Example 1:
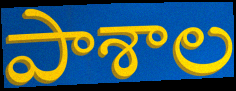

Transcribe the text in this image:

పాశాల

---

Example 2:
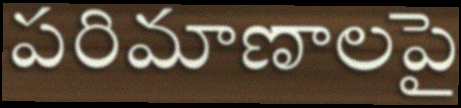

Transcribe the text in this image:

పరిమాణాలపై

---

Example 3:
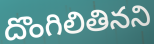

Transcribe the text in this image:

దొంగిలితినని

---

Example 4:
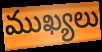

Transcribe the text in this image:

ముఖ్యలు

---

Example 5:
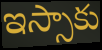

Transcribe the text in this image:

ఇస్సాకు